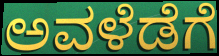
ಅವಳೆಡೆಗೆ